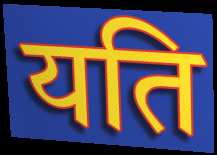
यति